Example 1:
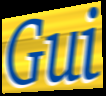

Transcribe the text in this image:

Gui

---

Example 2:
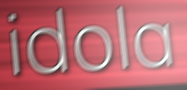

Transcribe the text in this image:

idola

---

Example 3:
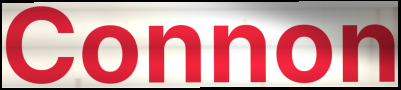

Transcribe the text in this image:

Connon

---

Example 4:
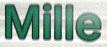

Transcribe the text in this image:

Mille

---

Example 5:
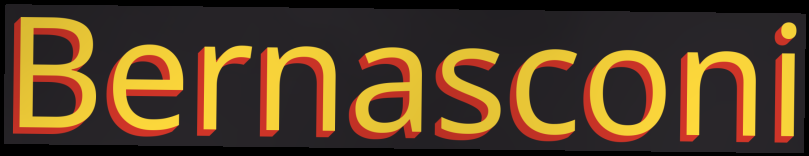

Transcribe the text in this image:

Bernasconi